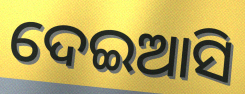
ଦେଇଆସି